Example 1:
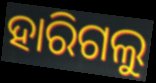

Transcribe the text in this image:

ହାରିଗଲୁ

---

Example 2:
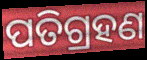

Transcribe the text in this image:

ପତିଗ୍ରହଣ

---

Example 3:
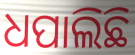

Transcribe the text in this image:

ଧପାଲିଛି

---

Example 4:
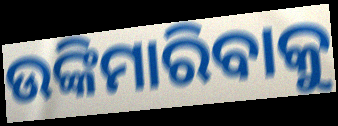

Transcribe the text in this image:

ଉଙ୍କିମାରିବାକୁ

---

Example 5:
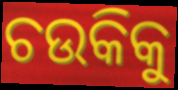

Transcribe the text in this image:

ଚଉକିକୁ